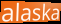
alaska